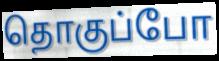
தொகுப்போ